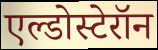
एल्डोस्टेरॉन